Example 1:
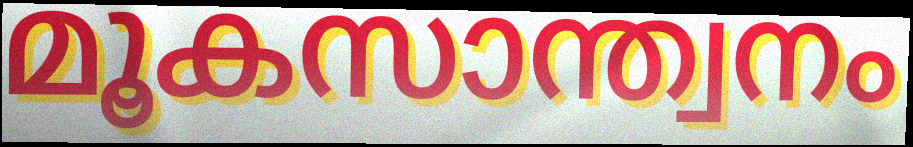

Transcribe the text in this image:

മൂകസാന്ത്വനം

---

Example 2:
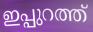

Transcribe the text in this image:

ഇപ്പുറത്ത്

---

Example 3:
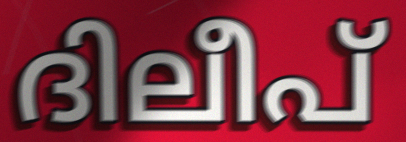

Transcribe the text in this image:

ദിലീപ്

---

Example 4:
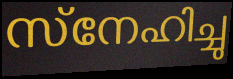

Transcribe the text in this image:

സ്‌നേഹിച്ചു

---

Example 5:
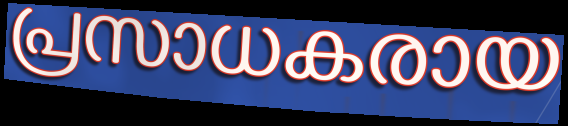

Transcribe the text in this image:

പ്രസാധകരായ